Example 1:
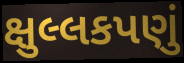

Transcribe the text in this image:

ક્ષુલ્લકપણું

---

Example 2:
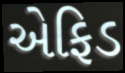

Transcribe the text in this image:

એફિડ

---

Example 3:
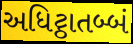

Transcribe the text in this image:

અધિટ્ઠાતબ્બં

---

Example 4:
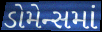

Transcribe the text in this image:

ડોમેન્સમાં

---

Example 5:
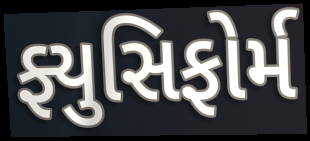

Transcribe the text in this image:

ફ્યુસિફોર્મ